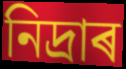
নিদ্ৰাৰ